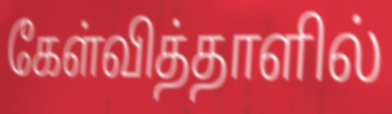
கேள்வித்தாளில்